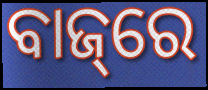
ବାଜ୍‌ରେ